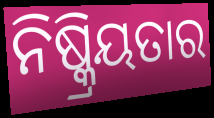
ନିଷ୍କ୍ରିୟତାର